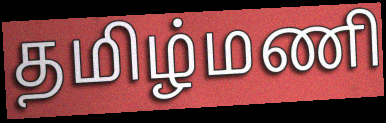
தமிழ்மணி